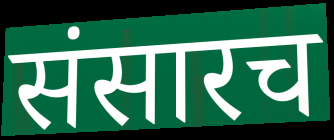
संसारच